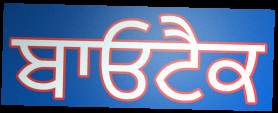
ਬਾਓਟੈਕ